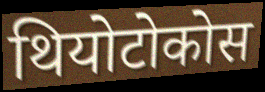
थियोटोकोस